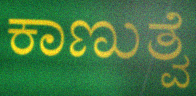
ಕಾಣುತ್ವೆ